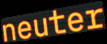
neuter